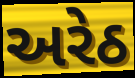
અરેઠ